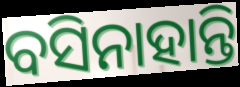
ବସିନାହାନ୍ତି